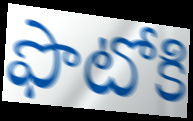
ఫొటోకి